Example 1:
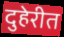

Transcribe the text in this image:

दुहेरीत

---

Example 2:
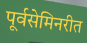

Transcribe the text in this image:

पूर्वसेमिनरीत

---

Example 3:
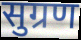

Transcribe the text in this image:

सुग्रण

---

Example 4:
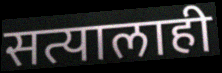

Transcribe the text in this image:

सत्यालाही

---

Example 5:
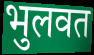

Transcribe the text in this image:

भुलवत